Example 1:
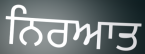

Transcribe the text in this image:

ਨਿਰਆਤ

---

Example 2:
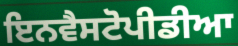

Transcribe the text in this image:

ਇਨਵੈਸਟੋਪੀਡੀਆ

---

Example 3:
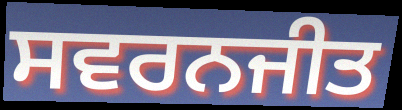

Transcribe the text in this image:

ਸਵਰਨਜੀਤ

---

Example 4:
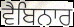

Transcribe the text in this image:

ਵੈਬਿਨਾਰ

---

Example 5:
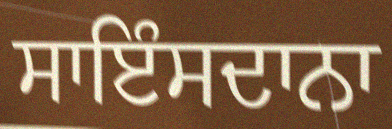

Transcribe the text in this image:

ਸਾਇੰਸਦਾਨਾ